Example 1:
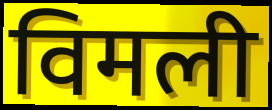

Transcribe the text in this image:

विमली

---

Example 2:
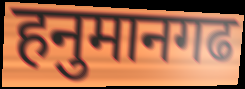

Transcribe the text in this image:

हनुमानगढ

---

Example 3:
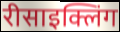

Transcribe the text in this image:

रीसाइक्लिंग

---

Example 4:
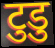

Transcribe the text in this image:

टुडु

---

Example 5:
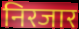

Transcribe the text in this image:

निरजार